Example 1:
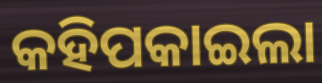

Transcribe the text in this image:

କହିପକାଇଲା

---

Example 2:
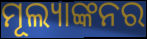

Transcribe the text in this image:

ମୂଲ୍ୟାଙ୍କନର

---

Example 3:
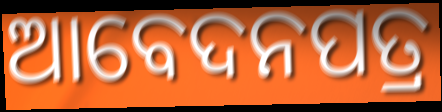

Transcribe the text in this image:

ଆବେଦନପତ୍ର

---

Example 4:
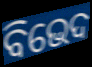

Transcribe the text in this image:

ବିଭେଦ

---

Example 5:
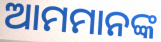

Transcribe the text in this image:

ଆମମାନଙ୍କ